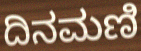
ದಿನಮಣಿ